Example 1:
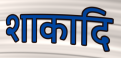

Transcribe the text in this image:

शाकादि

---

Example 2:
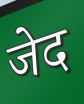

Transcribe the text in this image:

जेद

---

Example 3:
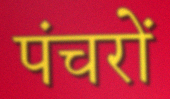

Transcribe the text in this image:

पंचरों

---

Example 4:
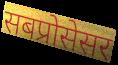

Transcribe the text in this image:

सबप्रोसेसर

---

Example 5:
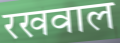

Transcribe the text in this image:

रखवाल